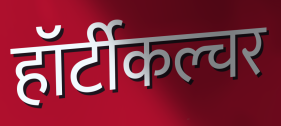
हॉर्टीकल्चर